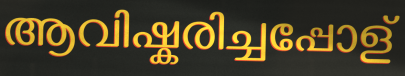
ആവിഷ്കരിച്ചപ്പോള്